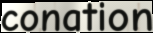
conation